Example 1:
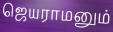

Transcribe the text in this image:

ஜெயராமனும்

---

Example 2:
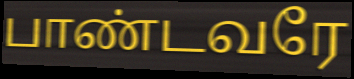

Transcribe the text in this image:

பாண்டவரே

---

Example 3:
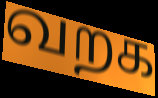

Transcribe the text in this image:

வறக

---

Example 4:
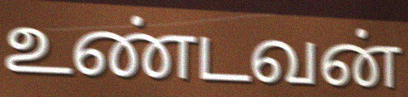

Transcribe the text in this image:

உண்டவன்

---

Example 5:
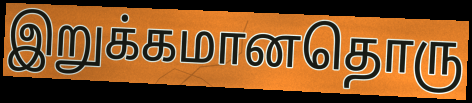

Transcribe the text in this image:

இறுக்கமானதொரு